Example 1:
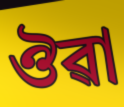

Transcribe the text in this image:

ঔৱা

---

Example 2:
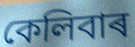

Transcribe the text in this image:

কেলিবাৰ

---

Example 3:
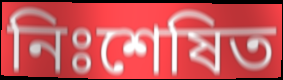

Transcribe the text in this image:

নিঃশেষিত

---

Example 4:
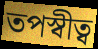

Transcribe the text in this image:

তপস্বীত্ব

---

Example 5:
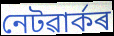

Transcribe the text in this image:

নেটৱাৰ্কৰ